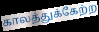
காலத்துக்கேற்ற